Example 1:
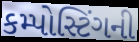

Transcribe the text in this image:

કમ્પોસ્ટિંગની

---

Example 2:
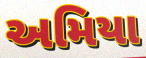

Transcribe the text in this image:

અમિયા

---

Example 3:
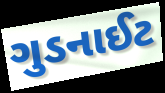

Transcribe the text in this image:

ગુડનાઈટ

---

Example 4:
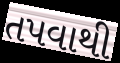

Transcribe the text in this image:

તપવાથી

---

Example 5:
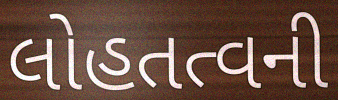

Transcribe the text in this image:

લોહતત્વની